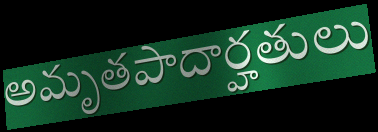
అమృతపాదార్హతులు